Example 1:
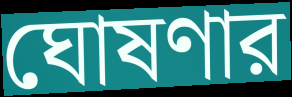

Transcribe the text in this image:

ঘোষণার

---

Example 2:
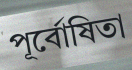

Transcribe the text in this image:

পূর্বোষিতা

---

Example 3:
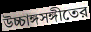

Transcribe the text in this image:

উচ্চাঙ্গসঙ্গীতের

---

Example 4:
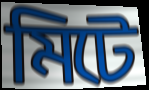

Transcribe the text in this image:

মিটে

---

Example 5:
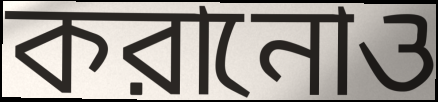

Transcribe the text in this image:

করানোও